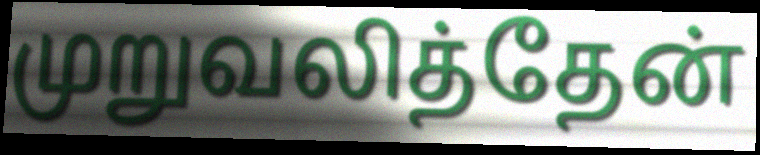
முறுவலித்தேன்